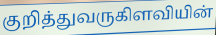
குறித்துவருகிளவியின்